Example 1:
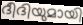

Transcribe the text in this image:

ദീദിയുമായി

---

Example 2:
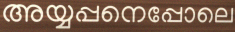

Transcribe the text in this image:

അയ്യപ്പനെപ്പോലെ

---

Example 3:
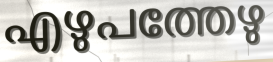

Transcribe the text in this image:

എഴുപത്തേഴു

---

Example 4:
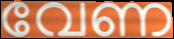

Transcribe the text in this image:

വേണ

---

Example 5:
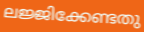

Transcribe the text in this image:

ലജ്ജിക്കേണ്ടതു